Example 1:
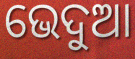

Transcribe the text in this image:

ଭେଦୁଆ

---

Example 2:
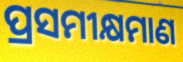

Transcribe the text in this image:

ପ୍ରସମୀକ୍ଷମାଣ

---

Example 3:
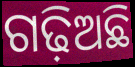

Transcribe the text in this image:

ଗଢ଼ିଅଛି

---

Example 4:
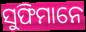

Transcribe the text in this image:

ସୁଫିମାନେ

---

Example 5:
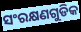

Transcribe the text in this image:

ସଂରକ୍ଷଣଗୁଡିକ